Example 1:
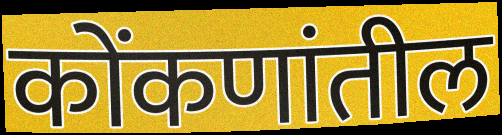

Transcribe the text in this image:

कोंकणांतील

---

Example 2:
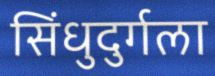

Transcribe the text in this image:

सिंधुदुर्गला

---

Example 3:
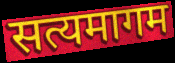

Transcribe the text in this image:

सत्यमागम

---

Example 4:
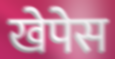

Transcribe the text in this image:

खेपेस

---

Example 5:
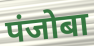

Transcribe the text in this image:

पंजोबा